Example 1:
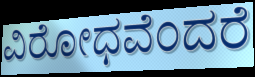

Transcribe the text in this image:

ವಿರೋಧವೆಂದರೆ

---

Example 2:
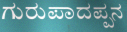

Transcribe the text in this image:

ಗುರುಪಾದಪ್ಪನ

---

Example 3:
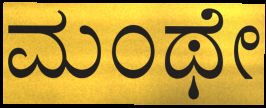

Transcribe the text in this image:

ಮಂಥೇ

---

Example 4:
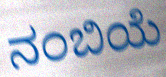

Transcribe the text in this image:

ನಂಬಿಯೆ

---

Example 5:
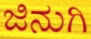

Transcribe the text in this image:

ಜಿನುಗಿ